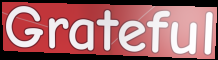
Grateful